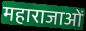
महाराजाओं